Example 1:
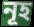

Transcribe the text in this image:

নূহ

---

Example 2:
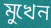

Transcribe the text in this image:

মুখেন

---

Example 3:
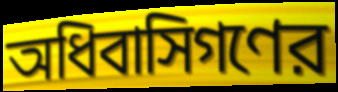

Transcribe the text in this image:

অধিবাসিগণের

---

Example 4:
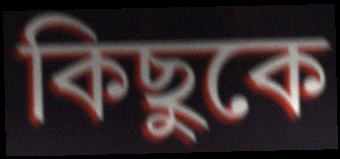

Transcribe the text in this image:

কিছুকে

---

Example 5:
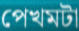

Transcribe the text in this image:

পেখমটা